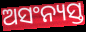
ଅସଂନ୍ୟସ୍ତ